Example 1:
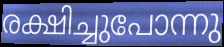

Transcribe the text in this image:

രക്ഷിച്ചുപോന്നു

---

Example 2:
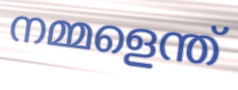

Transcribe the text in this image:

നമ്മളെന്ത്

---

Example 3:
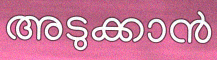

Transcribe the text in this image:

അടുക്കാൻ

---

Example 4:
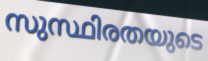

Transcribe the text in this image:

സുസ്ഥിരതയുടെ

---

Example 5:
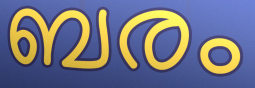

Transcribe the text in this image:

ബരം